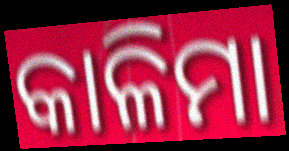
କାଳିମା